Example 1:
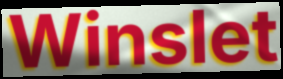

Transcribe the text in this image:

Winslet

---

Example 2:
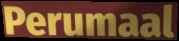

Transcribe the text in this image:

Perumaal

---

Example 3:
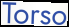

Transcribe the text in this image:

Torso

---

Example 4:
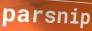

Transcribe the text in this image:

parsnip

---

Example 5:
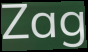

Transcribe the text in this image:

Zag